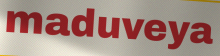
maduveya